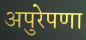
अपुरेपणा